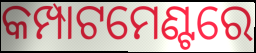
କମ୍ପାଟମେଣ୍ଟରେ